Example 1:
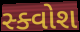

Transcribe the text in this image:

સ્ક્વોશ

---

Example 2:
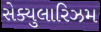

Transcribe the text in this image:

સેક્યુલારિઝમ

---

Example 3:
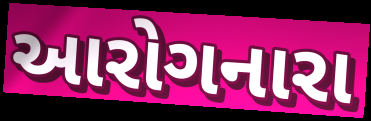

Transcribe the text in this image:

આરોગનારા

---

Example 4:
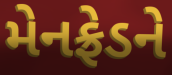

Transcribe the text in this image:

મેનફ્રેડને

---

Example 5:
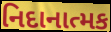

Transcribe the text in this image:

નિદાનાત્મક